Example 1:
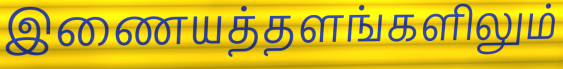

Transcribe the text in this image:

இணையத்தளங்களிலும்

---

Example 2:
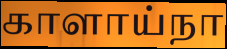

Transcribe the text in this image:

காளாய்நா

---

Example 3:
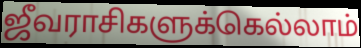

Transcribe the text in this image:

ஜீவராசிகளுக்கெல்லாம்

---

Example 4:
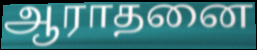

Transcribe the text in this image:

ஆராதனை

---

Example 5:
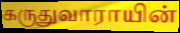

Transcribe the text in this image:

கருதுவாராயின்